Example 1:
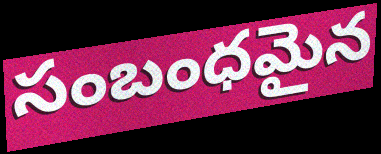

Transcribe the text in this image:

సంబంధమైన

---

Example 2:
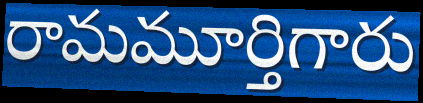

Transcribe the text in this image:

రామమూర్తిగారు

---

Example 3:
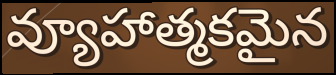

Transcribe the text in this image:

వ్యూహాత్మకమైన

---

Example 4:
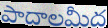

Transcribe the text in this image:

పాదాలమీద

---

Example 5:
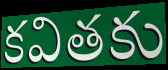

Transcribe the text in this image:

కవితకు